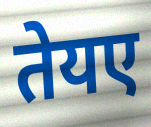
तेयए